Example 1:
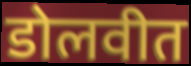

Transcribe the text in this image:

डोलवीत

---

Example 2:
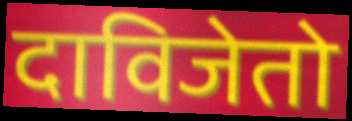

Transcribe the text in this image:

दाविजेतो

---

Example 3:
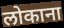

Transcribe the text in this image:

लोकाना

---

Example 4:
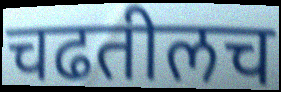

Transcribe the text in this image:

चढतीलच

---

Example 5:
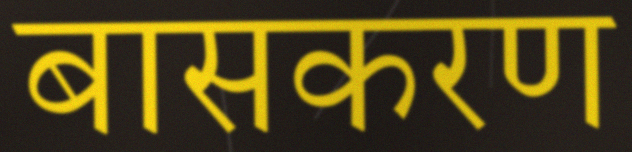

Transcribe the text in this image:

बासकरण